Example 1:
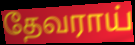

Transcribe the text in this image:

தேவராய்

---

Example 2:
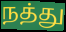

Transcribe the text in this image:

நத்து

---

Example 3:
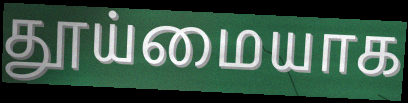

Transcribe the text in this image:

தூய்மையாக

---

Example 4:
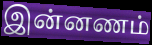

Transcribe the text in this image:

இன்னணம்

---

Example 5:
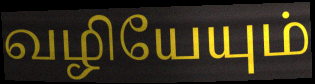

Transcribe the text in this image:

வழியேயும்